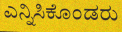
ಎನ್ನಿಸಿಕೊಂಡರು